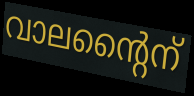
വാലന്റൈന്